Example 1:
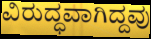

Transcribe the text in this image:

ವಿರುದ್ಧವಾಗಿದ್ದವು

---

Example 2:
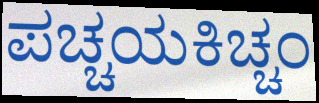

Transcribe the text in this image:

ಪಚ್ಚಯಕಿಚ್ಚಂ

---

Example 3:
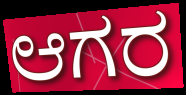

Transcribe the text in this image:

ಆಗರ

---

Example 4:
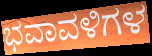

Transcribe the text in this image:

ಭವಾವಳಿಗಳ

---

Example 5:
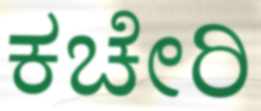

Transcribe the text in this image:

ಕಚೇರಿ